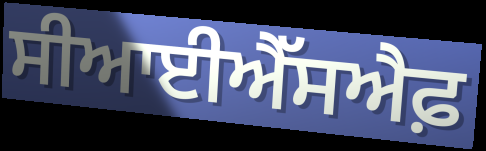
ਸੀਆਈਐੱਸਐਫ਼